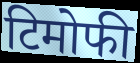
टिमोफी